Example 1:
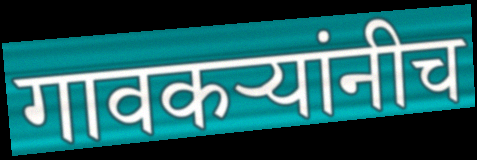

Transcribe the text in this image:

गावकऱ्यांनीच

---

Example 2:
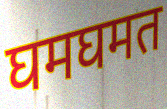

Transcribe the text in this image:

घमघमत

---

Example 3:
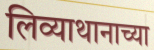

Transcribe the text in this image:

लिव्याथानाच्या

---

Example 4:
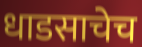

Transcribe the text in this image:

धाडसाचेच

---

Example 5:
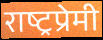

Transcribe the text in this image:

राष्ट्रप्रेमी